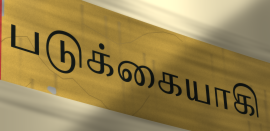
படுக்கையாகி